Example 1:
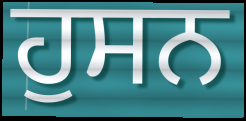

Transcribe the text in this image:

ਹੁਸਨ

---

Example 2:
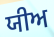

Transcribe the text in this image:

ਯੀਅ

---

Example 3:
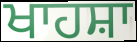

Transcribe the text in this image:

ਖਾਹਸ਼ਾ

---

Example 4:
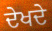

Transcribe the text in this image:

ਦੇਖਦੇ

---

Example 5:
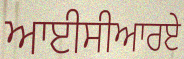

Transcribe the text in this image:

ਆਈਸੀਆਰਏ